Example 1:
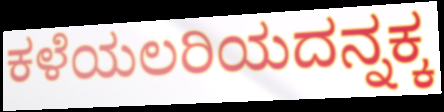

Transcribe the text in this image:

ಕಳೆಯಲರಿಯದನ್ನಕ್ಕ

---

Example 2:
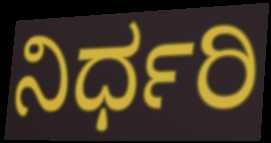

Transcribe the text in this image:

ನಿರ್ಧರಿ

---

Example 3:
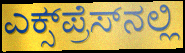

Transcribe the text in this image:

ಎಕ್ಸ್‌ಪ್ರೆಸ್‌ನಲ್ಲಿ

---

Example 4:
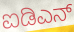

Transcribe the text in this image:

ಐಡಿಎನ್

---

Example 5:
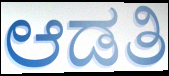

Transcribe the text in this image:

ಆಡತಿ